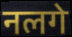
नलगे